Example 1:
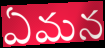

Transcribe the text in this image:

ఏమన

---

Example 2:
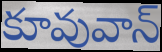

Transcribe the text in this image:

కూవువాన్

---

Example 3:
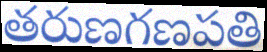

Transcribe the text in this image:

తరుణగణపతి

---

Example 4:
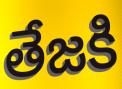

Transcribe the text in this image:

తేజకి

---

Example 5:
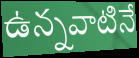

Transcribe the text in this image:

ఉన్నవాటినే